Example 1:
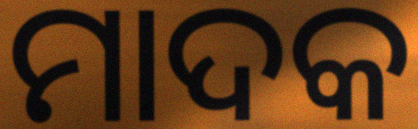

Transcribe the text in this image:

ମାଦକ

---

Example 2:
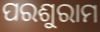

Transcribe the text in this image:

ପରଶୁରାମ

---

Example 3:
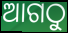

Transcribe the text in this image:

ଆଗଠୁ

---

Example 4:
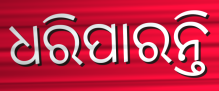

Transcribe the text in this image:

ଧରିପାରନ୍ତି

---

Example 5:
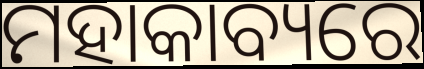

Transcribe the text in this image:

ମହାକାବ୍ୟରେ